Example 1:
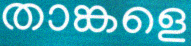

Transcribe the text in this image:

താങ്കളെ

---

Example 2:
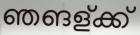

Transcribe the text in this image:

ഞങള്ക്ക്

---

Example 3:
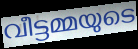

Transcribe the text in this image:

വീട്ടമ്മയുടെ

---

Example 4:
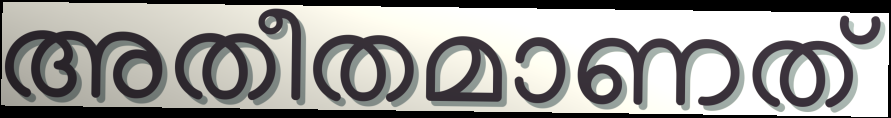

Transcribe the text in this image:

അതീതമാണത്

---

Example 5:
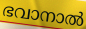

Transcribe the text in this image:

ഭവാനാൽ